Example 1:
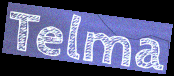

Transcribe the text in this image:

Telma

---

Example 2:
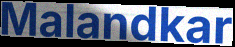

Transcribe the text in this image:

Malandkar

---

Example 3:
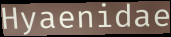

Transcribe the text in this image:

Hyaenidae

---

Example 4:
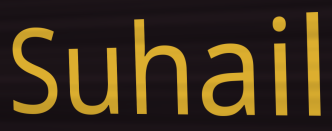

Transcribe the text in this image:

Suhail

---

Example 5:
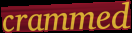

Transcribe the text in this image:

crammed